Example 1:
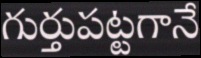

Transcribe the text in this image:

గుర్తుపట్టగానే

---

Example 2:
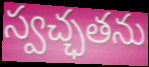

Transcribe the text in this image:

స్వచ్ఛతను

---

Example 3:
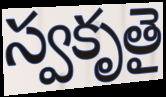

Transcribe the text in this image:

స్వకృతై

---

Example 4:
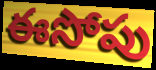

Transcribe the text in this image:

ఈసోపు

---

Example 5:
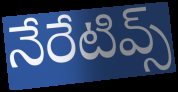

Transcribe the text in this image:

నేరేటివ్స్